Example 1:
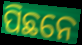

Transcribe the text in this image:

ପିଛନେ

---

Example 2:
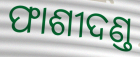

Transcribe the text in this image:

ଫାଶୀଦଣ୍ଡ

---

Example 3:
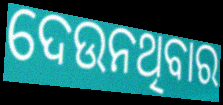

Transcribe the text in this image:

ଦେଉନଥିବାର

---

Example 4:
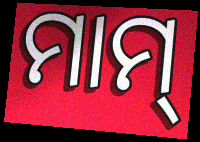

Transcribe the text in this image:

ମାମ୍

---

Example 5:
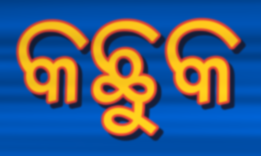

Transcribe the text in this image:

କଛୁକ